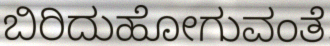
ಬಿರಿದುಹೋಗುವಂತೆ